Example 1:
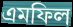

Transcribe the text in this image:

এমফিল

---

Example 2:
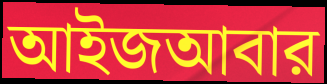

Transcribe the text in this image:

আইজআবার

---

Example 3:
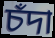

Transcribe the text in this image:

চঁদা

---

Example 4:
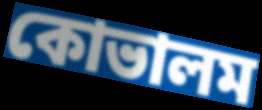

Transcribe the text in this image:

কোভালম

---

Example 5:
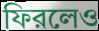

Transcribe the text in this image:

ফিরলেও